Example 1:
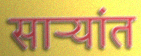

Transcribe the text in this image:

साऱ्यांत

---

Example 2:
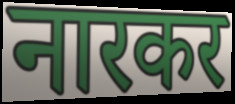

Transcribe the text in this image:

नारकर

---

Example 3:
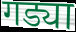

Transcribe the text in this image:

गड्या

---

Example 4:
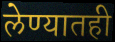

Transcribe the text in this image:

लेण्यातही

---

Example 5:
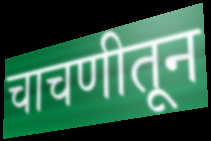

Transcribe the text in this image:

चाचणीतून